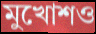
মুখোশও